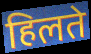
हिलते